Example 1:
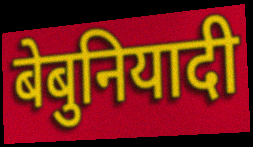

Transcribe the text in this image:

बेबुनियादी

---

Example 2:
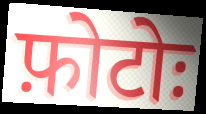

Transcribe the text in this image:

फ़ोटोः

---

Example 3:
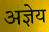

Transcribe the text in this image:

अज्ञेय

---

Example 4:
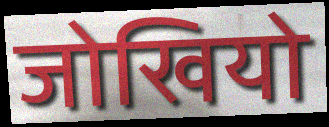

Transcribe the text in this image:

जोखियो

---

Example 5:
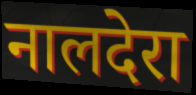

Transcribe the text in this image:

नालदेरा